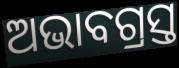
ଅଭାବଗ୍ରସ୍ତ